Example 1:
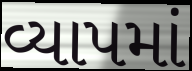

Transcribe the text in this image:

વ્યાપમાં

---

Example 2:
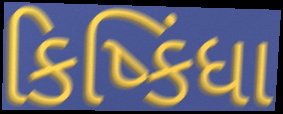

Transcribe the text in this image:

કિષ્કિંધા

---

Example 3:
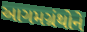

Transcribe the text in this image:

આગમગ્રંથોને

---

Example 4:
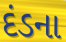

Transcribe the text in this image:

દંડના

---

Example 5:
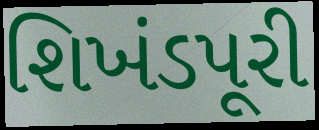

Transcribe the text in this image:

શિખંડપૂરી